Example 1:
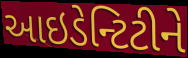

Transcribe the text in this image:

આઇડેન્ટિટીને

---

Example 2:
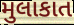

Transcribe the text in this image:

મુલાકાત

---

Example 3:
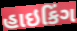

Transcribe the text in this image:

હાઇકિંગ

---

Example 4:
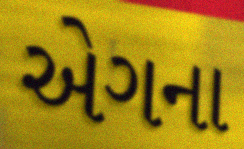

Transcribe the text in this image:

એગના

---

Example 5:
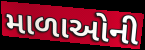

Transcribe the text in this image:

માળાઓની